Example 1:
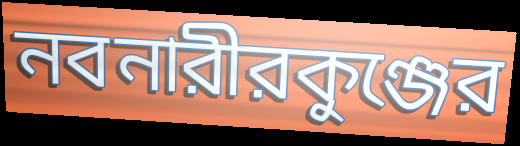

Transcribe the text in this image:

নবনারীরকুঞ্জের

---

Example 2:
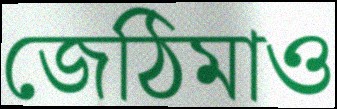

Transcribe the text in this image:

জেঠিমাও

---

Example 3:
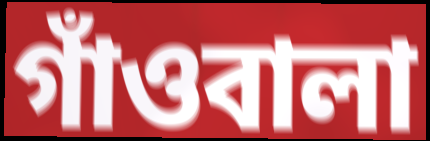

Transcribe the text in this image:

গাঁওবালা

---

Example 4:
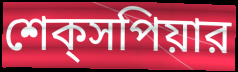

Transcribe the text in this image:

শেক্‌সপিয়ার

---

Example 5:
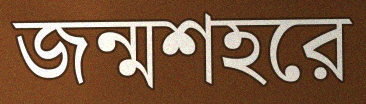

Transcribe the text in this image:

জন্মশহরে